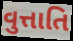
વુત્તાતિ